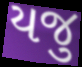
યજુ